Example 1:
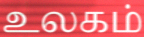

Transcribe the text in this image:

உலகம்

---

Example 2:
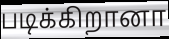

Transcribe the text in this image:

படிக்கிறானா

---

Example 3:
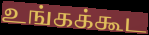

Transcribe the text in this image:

உங்கக்கூட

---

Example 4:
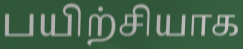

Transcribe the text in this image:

பயிற்சியாக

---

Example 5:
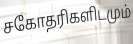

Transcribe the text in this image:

சகோதரிகளிடமும்